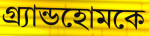
গ্র্যান্ডহোমকে